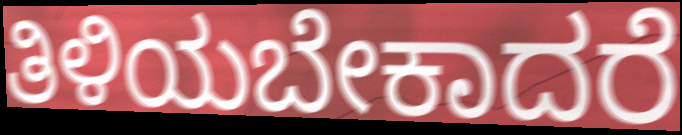
ತಿಳಿಯಬೇಕಾದರೆ